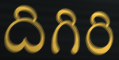
దిగిరి